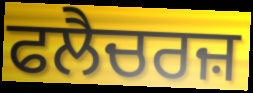
ਫਲੈਚਰਜ਼